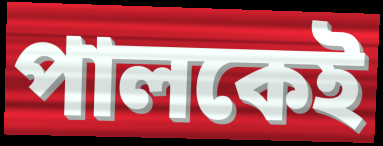
পালকেই